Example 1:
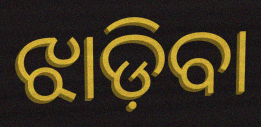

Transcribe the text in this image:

ଝାଡ଼ିବା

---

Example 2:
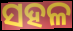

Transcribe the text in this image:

ସହଳ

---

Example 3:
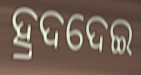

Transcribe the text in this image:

ହ୍ରଦଦେଇ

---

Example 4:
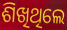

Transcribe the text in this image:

ଶିଖିଥିଲେ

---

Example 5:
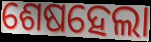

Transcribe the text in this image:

ଶେଷହେଲା